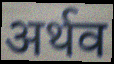
अर्थव